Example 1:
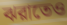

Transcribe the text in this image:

ঝরাতেও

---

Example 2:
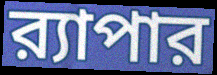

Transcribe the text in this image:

র‍্যাপার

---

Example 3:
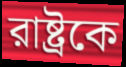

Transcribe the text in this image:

রাষ্ট্রকে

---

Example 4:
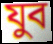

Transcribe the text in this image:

যুব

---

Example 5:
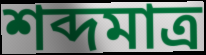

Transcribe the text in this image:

শব্দমাত্র